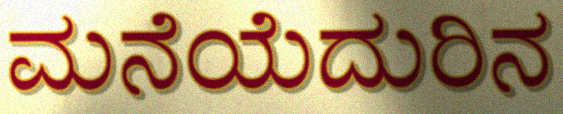
ಮನೆಯೆದುರಿನ